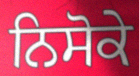
ਨਿਸੋਕੇ